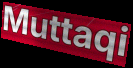
Muttaqi